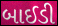
બાઈડી